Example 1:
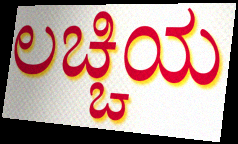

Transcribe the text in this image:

ಲಚ್ಚಿಯ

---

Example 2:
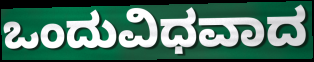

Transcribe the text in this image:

ಒಂದುವಿಧವಾದ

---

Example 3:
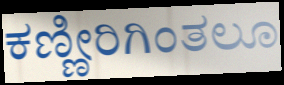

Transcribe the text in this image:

ಕಣ್ಣೀರಿಗಿಂತಲೂ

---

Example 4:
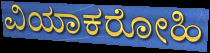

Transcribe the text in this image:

ವಿಯಾಕರೋಹಿ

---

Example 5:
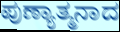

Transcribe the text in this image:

ಪುಣ್ಯಾತ್ಮನಾದ